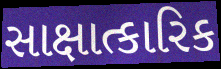
સાક્ષાત્કારિક